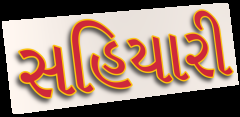
સહિયારી